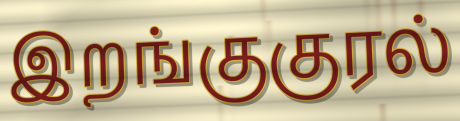
இறங்குகுரல்